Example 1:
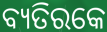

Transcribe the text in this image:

ବ୍ୟତିରକେ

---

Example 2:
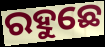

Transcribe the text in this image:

ରହୁଛେ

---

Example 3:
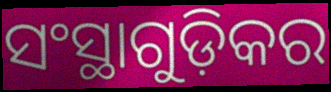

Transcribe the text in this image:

ସଂସ୍ଥାଗୁଡ଼ିକର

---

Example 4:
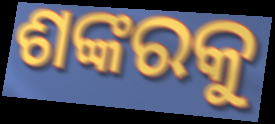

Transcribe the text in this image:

ଶଙ୍କରକୁ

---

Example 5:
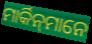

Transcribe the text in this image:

ମାର୍କିନ୍‌ମାନେ